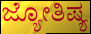
ಜ್ಯೋತಿಷ್ಯ